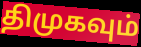
திமுகவும்